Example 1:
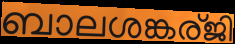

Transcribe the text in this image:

ബാലശങ്കര്ജി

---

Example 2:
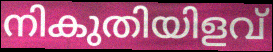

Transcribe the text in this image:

നികുതിയിളവ്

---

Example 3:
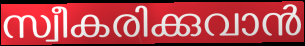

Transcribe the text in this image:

സ്വീകരിക്കുവാൻ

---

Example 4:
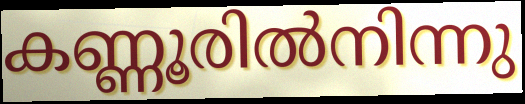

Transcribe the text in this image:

കണ്ണൂരിൽനിന്നു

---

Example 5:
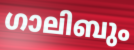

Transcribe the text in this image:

ഗാലിബും